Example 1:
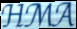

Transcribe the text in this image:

HMA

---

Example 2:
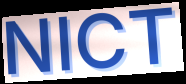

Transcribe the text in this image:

NICT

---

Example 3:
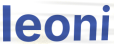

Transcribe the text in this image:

leoni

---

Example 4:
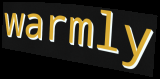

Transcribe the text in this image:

warmly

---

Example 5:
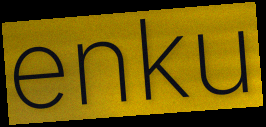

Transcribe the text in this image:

enku